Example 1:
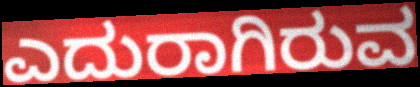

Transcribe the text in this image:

ಎದುರಾಗಿರುವ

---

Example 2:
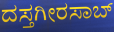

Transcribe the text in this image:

ದಸ್ತಗೀರಸಾಬ್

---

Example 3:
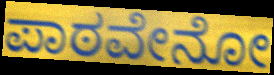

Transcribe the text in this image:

ಪಾಠವೇನೋ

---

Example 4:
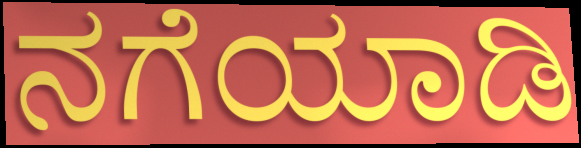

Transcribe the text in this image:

ನಗೆಯಾಡಿ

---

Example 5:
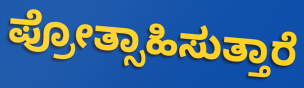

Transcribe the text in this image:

ಪ್ರೋತ್ಸಾಹಿಸುತ್ತಾರೆ